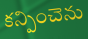
కన్పించెను